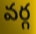
వర్గ